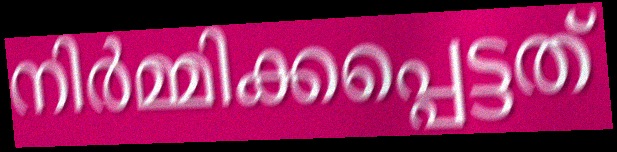
നിർമ്മിക്കപ്പെട്ടത്